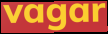
vagar